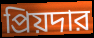
প্রিয়দার